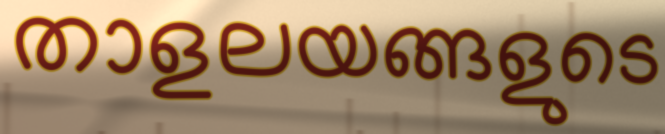
താളലയങ്ങളുടെ